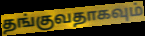
தங்குவதாகவும்